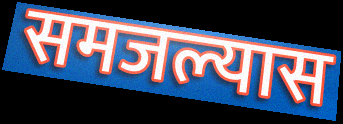
समजल्यास